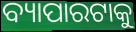
ବ୍ୟାପାରଟାକୁ